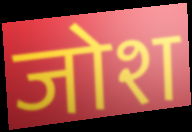
जोश